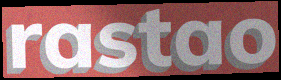
rastao